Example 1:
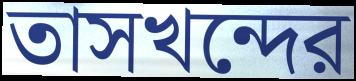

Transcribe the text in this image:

তাসখন্দের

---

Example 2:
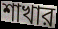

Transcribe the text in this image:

শাখার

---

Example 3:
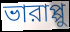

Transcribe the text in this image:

ভারাপ্পু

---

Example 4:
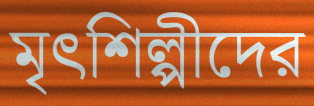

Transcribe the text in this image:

মৃৎশিল্পীদের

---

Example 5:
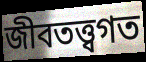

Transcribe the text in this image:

জীবতত্ত্বগত